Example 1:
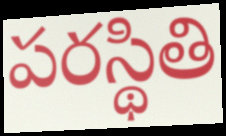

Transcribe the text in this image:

పరస్థితి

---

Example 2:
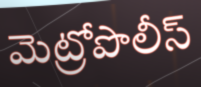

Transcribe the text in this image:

మెట్రోపొలీస్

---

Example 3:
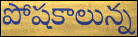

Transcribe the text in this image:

పోషకాలున్న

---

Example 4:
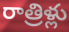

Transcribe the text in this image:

రాత్రిళ్లు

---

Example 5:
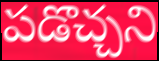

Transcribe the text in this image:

పడొచ్చని